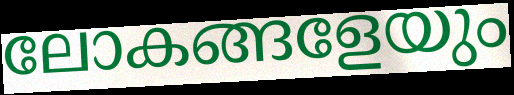
ലോകങ്ങളേയും